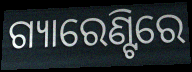
ଗ୍ୟାରେଣ୍ଟିରେ